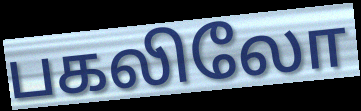
பகலிலோ